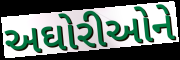
અઘોરીઓને